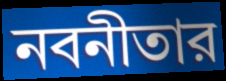
নবনীতার